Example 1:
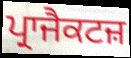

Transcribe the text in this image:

ਪ੍ਰਾਜੈਕਟਜ਼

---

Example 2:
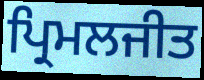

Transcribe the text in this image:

ਪ੍ਰਿਮਲਜੀਤ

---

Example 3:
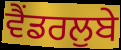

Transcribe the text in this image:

ਵੈਂਡਰਲੁਬੇ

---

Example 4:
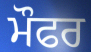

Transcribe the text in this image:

ਮੌਫਰ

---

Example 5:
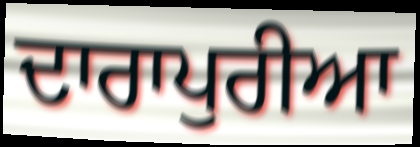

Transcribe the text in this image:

ਦਾਰਾਪੁਰੀਆ